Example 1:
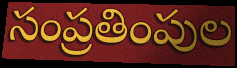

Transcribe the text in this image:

సంప్రతింపుల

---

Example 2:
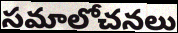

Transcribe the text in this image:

సమాలోచనలు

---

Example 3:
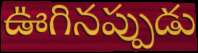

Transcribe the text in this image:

ఊగినప్పుడు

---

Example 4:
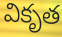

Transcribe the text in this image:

వికృత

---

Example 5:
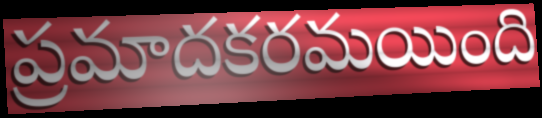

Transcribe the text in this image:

ప్రమాదకరమయింది